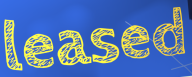
leased